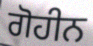
ਗੋਹੀਨ